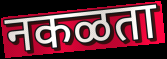
नकळता